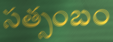
సత్సంబం